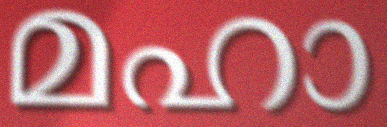
മഹാ